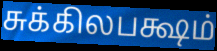
சுக்கிலபக்ஷம்